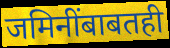
जमिनींबाबतही